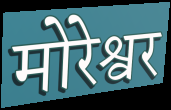
मोरेश्वर